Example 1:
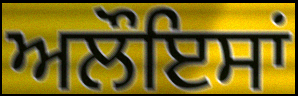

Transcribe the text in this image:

ਅਲੌਇਸਾਂ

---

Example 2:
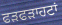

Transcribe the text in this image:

ਫੜਫੜਾਹਟਾਂ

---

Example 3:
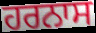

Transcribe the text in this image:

ਹਰਨਾਸ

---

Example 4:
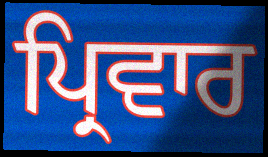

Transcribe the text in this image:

ਪ੍ਰਿਵਾਰ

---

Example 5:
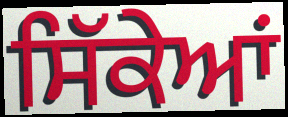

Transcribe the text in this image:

ਸਿੱਕੇਆਂ